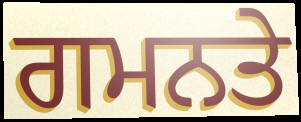
ਗਮਨਤੇ